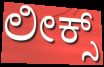
ಲೀಕ್ಸ್